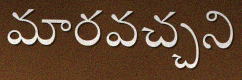
మారవచ్చని